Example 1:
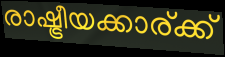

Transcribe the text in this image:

രാഷ്ട്രീയക്കാര്ക്ക്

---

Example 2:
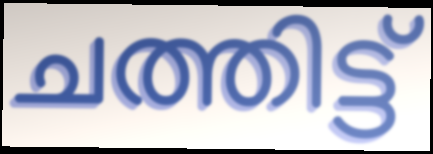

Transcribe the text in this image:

ചത്തിട്ട്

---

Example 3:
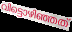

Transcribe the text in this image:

വിട്ടൊഴിഞ്ഞത്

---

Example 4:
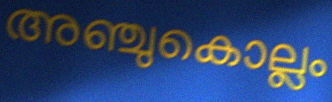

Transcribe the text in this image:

അഞ്ചുകൊല്ലം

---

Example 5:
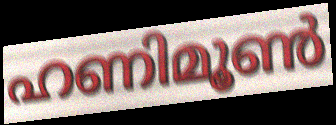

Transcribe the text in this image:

ഹണിമൂൺ